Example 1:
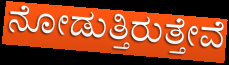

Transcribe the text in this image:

ನೋಡುತ್ತಿರುತ್ತೇವೆ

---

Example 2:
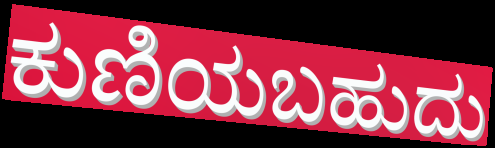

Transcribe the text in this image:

ಕುಣಿಯಬಹುದು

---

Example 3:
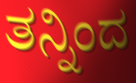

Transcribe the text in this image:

ತನ್ನಿಂದ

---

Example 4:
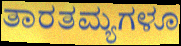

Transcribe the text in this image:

ತಾರತಮ್ಯಗಳೂ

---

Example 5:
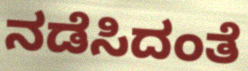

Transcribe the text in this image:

ನಡೆಸಿದಂತೆ